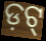
ଡ଼ଟ୍